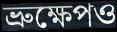
ভ্রুক্ষেপও